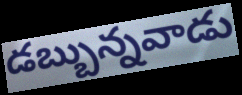
డబ్బున్నవాడు